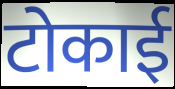
टोकाई